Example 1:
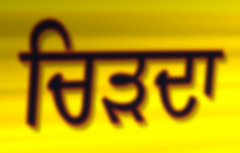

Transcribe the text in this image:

ਚਿੜਦਾ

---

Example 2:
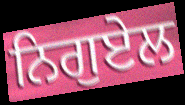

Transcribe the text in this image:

ਨਿਗੁਏਲ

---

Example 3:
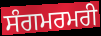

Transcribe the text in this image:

ਸੰਗਮਰਮਰੀ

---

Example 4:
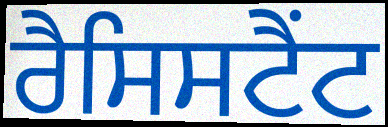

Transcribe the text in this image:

ਰੈਸਿਸਟੈਂਟ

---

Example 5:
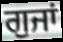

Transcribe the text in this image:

ਗੁਜਾਂ